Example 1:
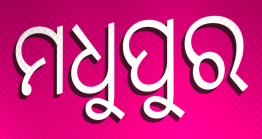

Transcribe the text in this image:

ମଧୁପୁର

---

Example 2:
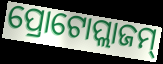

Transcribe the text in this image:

ପ୍ରୋଟୋପ୍ଲାଜମ୍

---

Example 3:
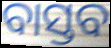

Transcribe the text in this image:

ବାସ୍ତବ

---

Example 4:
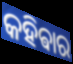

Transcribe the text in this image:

କହିଵାର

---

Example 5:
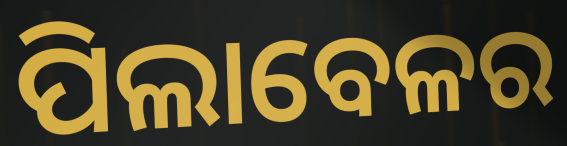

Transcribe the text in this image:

ପିଲାବେଳର